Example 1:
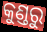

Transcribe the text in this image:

କୁଣ୍ଡରୁ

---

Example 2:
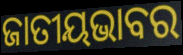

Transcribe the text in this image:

ଜାତୀୟଭାବର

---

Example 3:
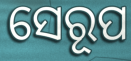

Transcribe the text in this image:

ସେରୂପ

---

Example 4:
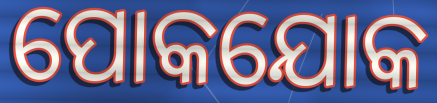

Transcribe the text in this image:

ପୋକଯୋକ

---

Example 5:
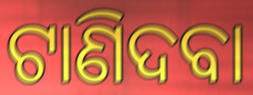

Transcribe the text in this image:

ଟାଣିଦବା